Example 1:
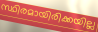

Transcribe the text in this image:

സ്ഥിരമായിരിക്കയില്ല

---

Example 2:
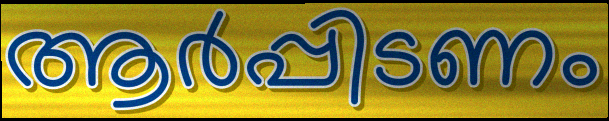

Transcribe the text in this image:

ആർപ്പിടണം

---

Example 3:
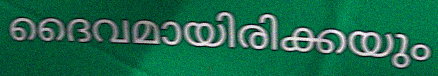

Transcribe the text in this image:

ദൈവമായിരിക്കയും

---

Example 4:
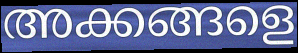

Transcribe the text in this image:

അക്കങ്ങളെ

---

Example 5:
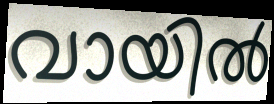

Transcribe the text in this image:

വായിൽ